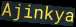
Ajinkya